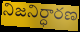
నిజనిర్ధారణ